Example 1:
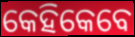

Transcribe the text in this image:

କେହିକେବେ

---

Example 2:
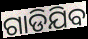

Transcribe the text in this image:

ଗାଡିଯିବ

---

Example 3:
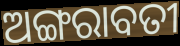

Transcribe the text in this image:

ଅଙ୍ଗରାବତୀ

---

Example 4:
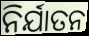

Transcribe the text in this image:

ନିର୍ଯାତନ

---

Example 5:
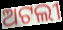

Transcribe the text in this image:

ଅଟଲୀ